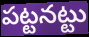
పట్టనట్టు